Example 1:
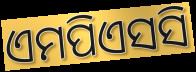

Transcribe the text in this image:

ଏମପିଏସସି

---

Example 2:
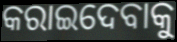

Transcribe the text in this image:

କରାଇଦେବାକୁ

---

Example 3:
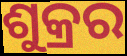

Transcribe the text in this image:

ଶୁକ୍ରର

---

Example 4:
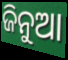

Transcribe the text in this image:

ଜିନୁଆ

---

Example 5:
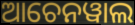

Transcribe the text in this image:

ଆଚେନୱାଲ